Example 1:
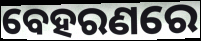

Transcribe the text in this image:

ବେହରଣରେ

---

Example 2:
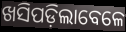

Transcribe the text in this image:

ଖସିପଡ଼ିଲାବେଳେ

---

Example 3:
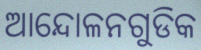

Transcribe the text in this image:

ଆନ୍ଦୋଳନଗୁଡିକ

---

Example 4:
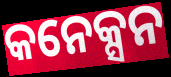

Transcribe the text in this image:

କନେକ୍ସନ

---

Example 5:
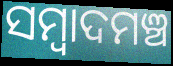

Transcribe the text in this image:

ସମ୍ୱାଦମଞ୍ଚ